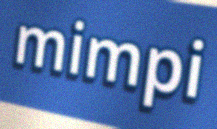
mimpi